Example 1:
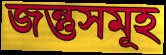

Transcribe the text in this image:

জন্তুসমূহ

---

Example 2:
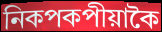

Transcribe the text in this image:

নিকপকপীয়াকৈ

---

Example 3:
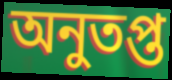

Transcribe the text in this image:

অনুতপ্ত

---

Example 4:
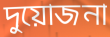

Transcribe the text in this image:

দুয়োজনা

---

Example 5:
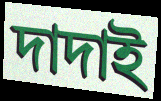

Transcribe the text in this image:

দাদাই